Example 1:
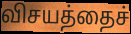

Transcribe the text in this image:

விசயத்தைச்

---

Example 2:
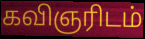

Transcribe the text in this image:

கவிஞரிடம்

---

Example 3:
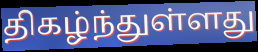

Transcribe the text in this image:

திகழ்ந்துள்ளது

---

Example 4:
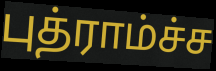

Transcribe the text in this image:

புத்ராம்ச்ச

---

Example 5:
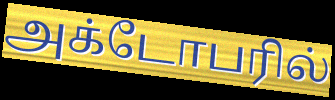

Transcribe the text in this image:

அக்டோபரில்